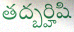
తద్బర్హిషి